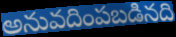
అనువదింపబడినది